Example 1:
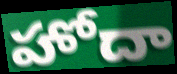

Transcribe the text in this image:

హోదా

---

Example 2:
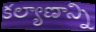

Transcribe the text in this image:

కల్యాణాన్ని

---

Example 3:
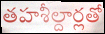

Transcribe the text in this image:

తహశీల్దార్లతో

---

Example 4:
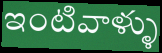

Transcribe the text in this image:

ఇంటివాళ్ళు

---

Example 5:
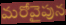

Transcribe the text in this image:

మరోవైపున